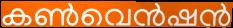
കൺവെൻഷൻ